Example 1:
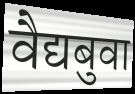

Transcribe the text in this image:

वैद्यबुवा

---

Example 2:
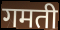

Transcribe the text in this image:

गमती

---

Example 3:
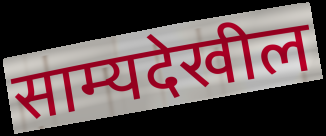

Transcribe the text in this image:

साम्यदेखील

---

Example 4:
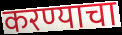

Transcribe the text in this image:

करण्याचा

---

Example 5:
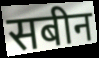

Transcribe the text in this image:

सबीन